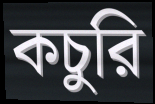
কচুরি